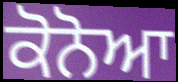
ਕੋਨੋਆ